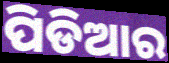
ପିଡିଆର